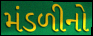
મંડળીનો